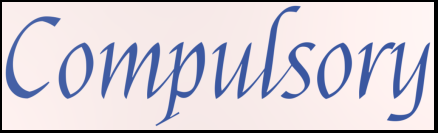
Compulsory